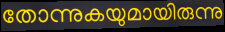
തോന്നുകയുമായിരുന്നു